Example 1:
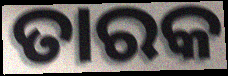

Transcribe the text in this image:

ତାରକ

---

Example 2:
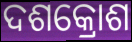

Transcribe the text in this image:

ଦଶକ୍ରୋଶ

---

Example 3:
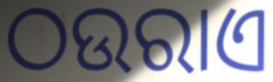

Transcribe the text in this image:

ଠଉରାଏ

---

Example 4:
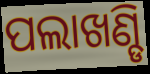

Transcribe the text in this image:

ପଲାଖଣ୍ଡି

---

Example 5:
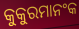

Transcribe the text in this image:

କୁକୁରମାନଂକ